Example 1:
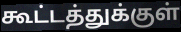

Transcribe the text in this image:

கூட்டத்துக்குள்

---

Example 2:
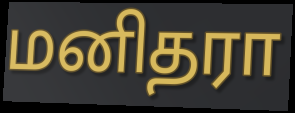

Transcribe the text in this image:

மனிதரா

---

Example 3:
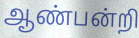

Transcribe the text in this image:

ஆண்பன்றி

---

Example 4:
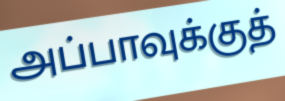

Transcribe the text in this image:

அப்பாவுக்குத்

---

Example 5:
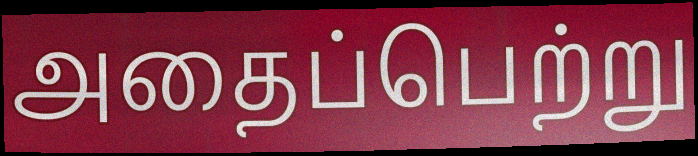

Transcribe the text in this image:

அதைப்பெற்று